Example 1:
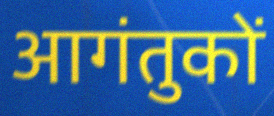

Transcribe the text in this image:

आगंतुकों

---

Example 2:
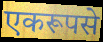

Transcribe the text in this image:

एकरूपसे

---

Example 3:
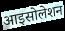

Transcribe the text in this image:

आइसोलेशन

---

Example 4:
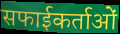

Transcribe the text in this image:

सफाईकर्ताओं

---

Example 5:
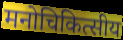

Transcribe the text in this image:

मनोचिकित्सीय